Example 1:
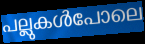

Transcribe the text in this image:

പല്ലുകൾപോലെ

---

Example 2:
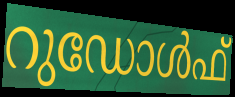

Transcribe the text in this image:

റുഡോൾഫ്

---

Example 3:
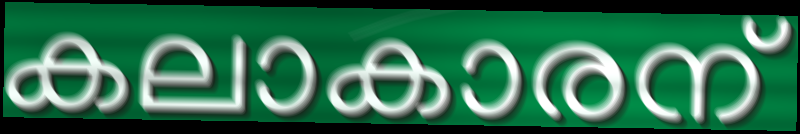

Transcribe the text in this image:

കലാകാരന്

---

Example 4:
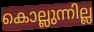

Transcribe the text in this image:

കൊല്ലുന്നില്ല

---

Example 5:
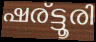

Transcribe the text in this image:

ഷര്ട്ടൂരി